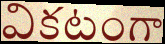
వికటంగా